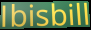
Ibisbill